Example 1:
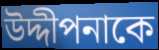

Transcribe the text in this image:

উদ্দীপনাকে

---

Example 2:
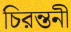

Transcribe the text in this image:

চিরন্তনী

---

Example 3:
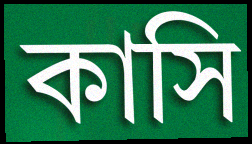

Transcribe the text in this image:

কাসি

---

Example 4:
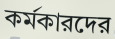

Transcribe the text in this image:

কর্মকারদের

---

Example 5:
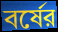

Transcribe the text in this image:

বর্ষের